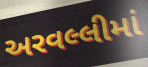
અરવલ્લીમાં